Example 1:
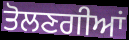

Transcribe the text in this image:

ਤੋਲਣਗੀਆਂ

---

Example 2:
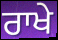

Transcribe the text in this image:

ਰਾਖੇ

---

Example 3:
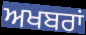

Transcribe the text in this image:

ਅਖਬਰਾਂ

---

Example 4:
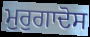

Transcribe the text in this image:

ਮੁਰੁਗਾਦੋਸ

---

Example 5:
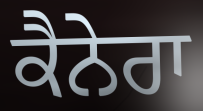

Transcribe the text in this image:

ਕੈਨੇਰਾ